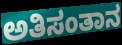
ಅತಿಸಂತಾನ